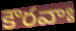
కౌరవాః